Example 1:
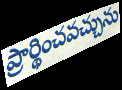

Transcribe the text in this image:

ప్రార్థించవచ్చును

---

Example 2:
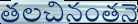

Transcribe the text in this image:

తలచినంతనె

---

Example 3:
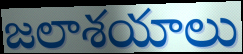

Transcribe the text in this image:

జలాశయాలు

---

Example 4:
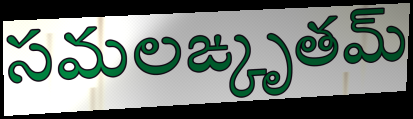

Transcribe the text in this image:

సమలఙ్కృతమ్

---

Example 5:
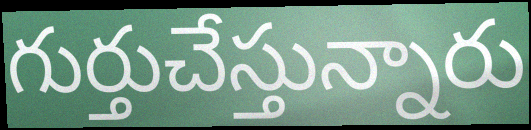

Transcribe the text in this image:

గుర్తుచేస్తున్నారు